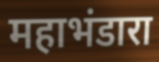
महाभंडारा